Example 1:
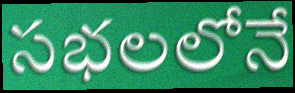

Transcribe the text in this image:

సభలలోనే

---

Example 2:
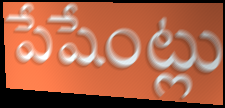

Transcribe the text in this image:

పేషేంట్లు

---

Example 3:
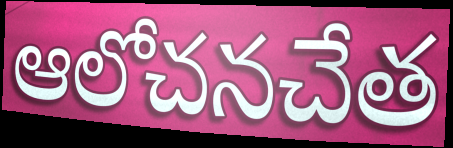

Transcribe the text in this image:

ఆలోచనచేత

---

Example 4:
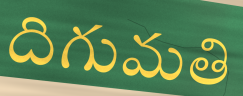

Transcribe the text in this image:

దిగుమతి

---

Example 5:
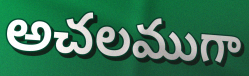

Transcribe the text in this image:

అచలముగా